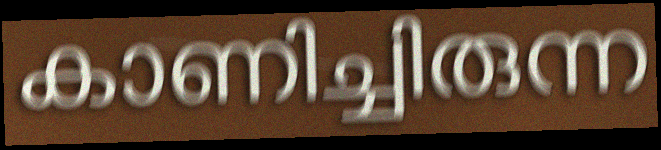
കാണിച്ചിരുന്ന